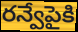
రన్వేపైకి